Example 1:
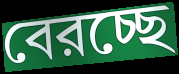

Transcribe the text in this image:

বেরচ্ছে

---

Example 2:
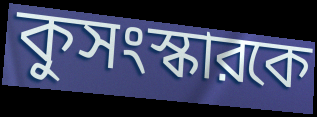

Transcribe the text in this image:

কুসংস্কারকে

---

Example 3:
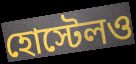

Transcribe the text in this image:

হোস্টেলও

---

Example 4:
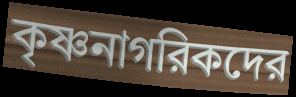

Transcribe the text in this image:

কৃষ্ণনাগরিকদের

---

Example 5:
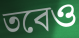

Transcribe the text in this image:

তবেও